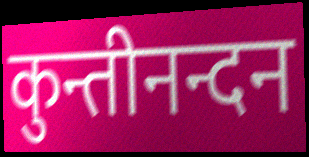
कुन्तीनन्दन